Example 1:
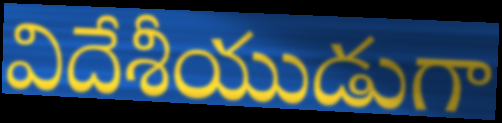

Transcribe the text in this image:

విదేశీయుడుగా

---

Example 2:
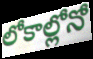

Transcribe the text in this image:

లోకాల్లోనో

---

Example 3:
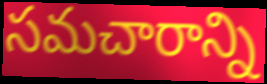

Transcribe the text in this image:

సమచారాన్ని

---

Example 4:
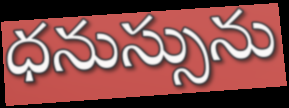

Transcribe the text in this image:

ధనుస్సును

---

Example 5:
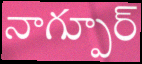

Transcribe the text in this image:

నాగ్పూర్